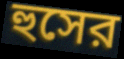
হুসের